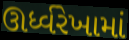
ઊર્ધ્વરેખામાં